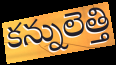
కన్నులెత్తి